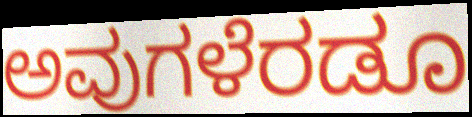
ಅವುಗಳೆರಡೂ